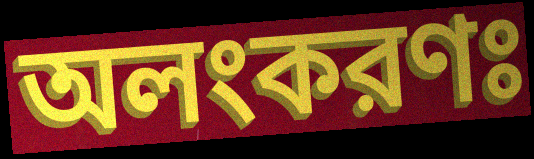
অলংকরণঃ